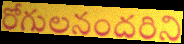
రోగులనందరిని